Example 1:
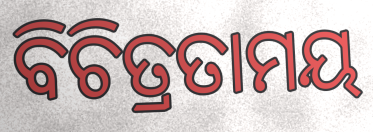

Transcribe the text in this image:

ବିଚିତ୍ରତାମୟ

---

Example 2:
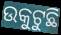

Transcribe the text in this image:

ଉକୁଟୁଛି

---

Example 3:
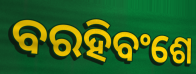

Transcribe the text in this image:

ବରହିବଂଶେ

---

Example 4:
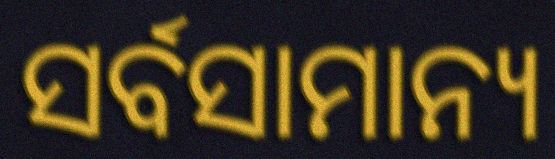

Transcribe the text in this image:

ସର୍ବସାମାନ୍ୟ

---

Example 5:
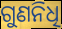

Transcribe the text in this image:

ଗୁଣନିଧି